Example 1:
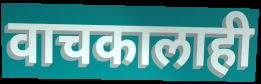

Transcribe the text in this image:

वाचकालाही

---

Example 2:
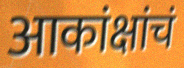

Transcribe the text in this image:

आकांक्षांचं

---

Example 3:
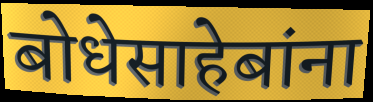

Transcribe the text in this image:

बोधेसाहेबांना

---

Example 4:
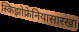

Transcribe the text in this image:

स्किझोफ्रेनियासारखा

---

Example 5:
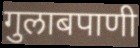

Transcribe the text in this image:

गुलाबपाणी